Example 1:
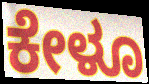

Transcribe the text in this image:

ಕೇಳೂ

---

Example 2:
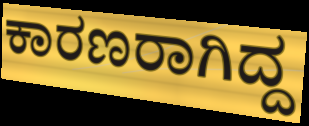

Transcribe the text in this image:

ಕಾರಣರಾಗಿದ್ದ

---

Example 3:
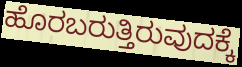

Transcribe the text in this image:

ಹೊರಬರುತ್ತಿರುವುದಕ್ಕೆ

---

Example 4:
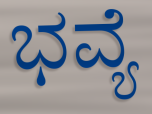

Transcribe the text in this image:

ಭವ್ಯೆ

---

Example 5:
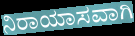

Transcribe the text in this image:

ನಿರಾಯಾಸವಾಗಿ